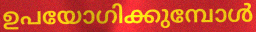
ഉപയോഗിക്കുമ്പോൾ